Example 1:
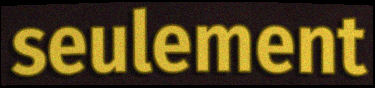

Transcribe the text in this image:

seulement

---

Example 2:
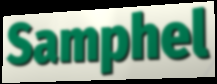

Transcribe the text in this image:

Samphel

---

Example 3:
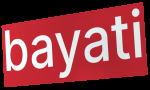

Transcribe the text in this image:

bayati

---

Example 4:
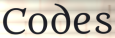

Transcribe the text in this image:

Codes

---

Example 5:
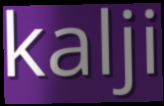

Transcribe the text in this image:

kalji